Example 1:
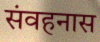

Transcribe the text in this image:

संवहनास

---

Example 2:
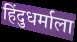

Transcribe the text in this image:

हिंदुधर्माला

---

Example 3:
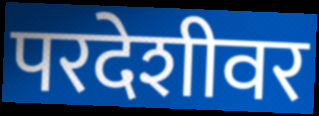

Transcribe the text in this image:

परदेशीवर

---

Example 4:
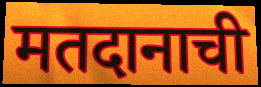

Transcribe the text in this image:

मतदानाची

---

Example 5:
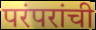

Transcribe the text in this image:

परंपरांची